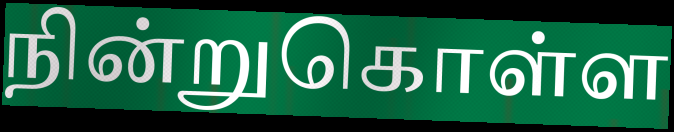
நின்றுகொள்ள